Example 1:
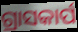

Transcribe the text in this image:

ଗ୍ରାସକାର୍ପ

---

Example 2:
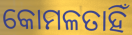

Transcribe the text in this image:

କୋମଳତାହିଁ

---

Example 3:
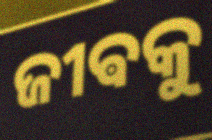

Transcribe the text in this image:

ଜୀଵକୁ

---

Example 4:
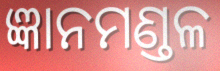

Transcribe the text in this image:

ଜ୍ଞାନମଣ୍ଡଳ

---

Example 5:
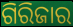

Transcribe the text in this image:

ଗିରିଜାର